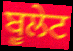
ਬੂਲੇਟ